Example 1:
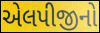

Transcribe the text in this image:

એલપીજીનો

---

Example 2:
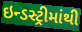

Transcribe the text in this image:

ઇન્ડસ્ટ્રીમાંથી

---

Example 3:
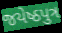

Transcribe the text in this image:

જયેષ્ઠપુત્ર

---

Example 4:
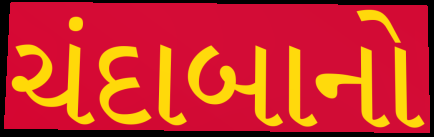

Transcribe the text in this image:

ચંદાબાનો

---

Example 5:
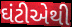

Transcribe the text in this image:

ઘંટીએથી